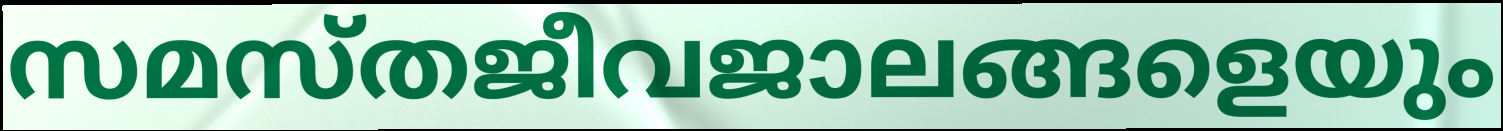
സമസ്തജീവജാലങ്ങളെയും